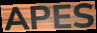
APES